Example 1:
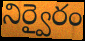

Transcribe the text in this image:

నిర్వైరం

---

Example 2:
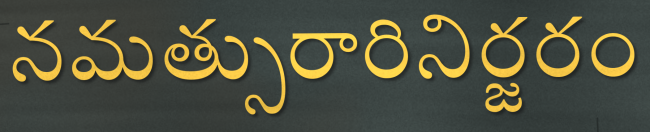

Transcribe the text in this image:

నమత్సురారినిర్జరం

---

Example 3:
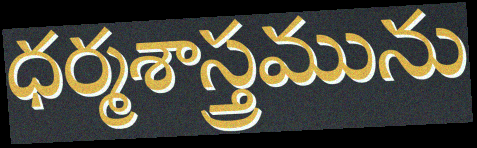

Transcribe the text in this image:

ధర్మశాస్త్రమును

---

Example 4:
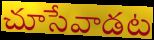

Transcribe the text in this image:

చూసేవాడట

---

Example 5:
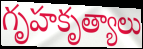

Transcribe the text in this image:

గృహకృత్యాలు